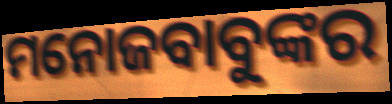
ମନୋଜବାବୁଙ୍କର